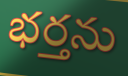
భర్తను